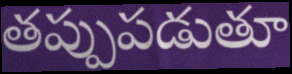
తప్పుపడుతూ